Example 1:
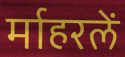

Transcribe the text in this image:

र्माहरलें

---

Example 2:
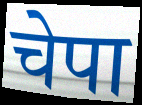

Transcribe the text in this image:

चेपा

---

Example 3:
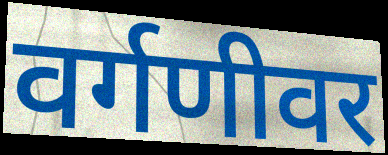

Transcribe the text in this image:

वर्गणीवर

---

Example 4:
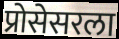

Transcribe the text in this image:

प्रोसेसरला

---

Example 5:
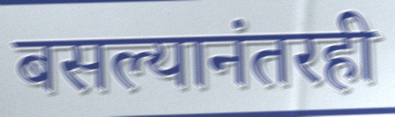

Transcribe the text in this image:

बसल्यानंतरही